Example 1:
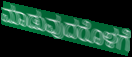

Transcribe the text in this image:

ಮಾಡುವುದರೊಳಗೆ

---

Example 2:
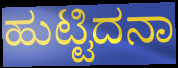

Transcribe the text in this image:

ಹುಟ್ಟಿದನಾ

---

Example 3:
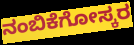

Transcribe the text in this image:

ನಂಬಿಕೆಗೋಸ್ಕರ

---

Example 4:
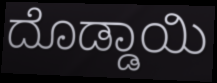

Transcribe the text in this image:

ದೊಡ್ಡಾಯಿ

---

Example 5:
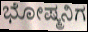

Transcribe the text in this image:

ಭೋಷ್ಮನಿಗ